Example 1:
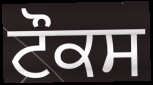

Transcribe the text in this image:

ਟੌਕਸ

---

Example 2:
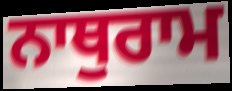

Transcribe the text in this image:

ਨਾਥੁਰਾਮ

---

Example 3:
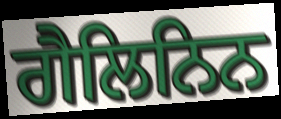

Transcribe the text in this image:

ਗੈਲਿਨਿਨ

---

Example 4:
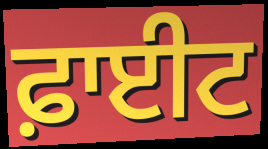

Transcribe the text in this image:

ਫ਼ਾਈਟ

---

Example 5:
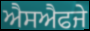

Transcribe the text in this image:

ਐਸਐਫਜੇ